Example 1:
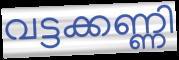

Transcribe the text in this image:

വട്ടക്കണ്ണി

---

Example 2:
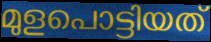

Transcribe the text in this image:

മുളപൊട്ടിയത്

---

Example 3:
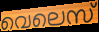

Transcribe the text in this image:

വെലെസ്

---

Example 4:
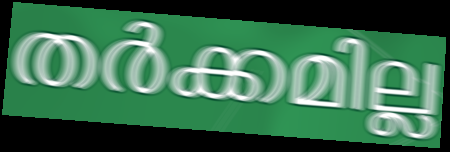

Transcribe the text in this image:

തർക്കമില്ല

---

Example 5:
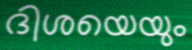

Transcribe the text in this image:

ദിശയെയും